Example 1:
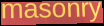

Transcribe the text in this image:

masonry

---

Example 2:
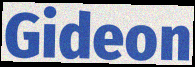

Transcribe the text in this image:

Gideon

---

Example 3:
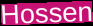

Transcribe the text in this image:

Hossen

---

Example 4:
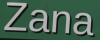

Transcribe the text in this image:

Zana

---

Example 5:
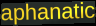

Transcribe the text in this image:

aphanatic